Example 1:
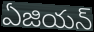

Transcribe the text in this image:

ఏజియన్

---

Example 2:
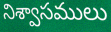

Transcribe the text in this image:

నిశ్వాసములు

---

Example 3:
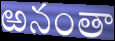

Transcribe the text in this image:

ఱనంతా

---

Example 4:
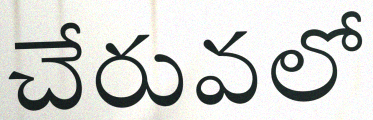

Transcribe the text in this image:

చేరువలో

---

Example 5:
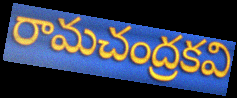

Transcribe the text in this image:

రామచంద్రకవి